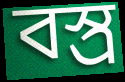
বস্ত্ৰ